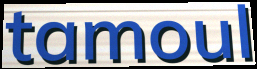
tamoul